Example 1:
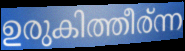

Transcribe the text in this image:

ഉരുകിത്തീര്ന്ന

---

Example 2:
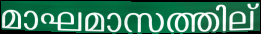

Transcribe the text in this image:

മാഘമാസത്തില്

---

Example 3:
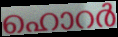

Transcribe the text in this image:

ഹൊറർ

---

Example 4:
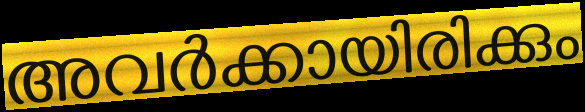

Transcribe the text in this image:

അവർക്കായിരിക്കും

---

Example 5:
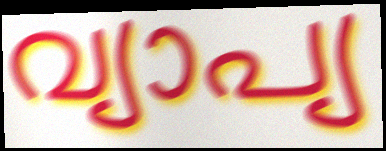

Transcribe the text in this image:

വ്യാപ്യ